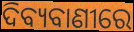
ଦିବ୍ୟବାଣୀରେ